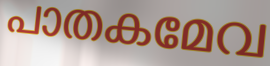
പാതകമേവ